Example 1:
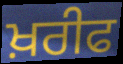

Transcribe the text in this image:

ਖ਼ਰੀਫ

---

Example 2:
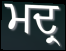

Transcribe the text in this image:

ਮਦ੍ਰ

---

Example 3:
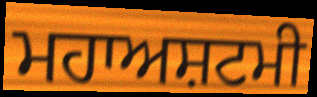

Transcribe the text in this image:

ਮਹਾਅਸ਼ਟਮੀ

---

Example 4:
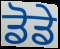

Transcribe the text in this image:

ਡੋਡੇ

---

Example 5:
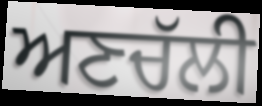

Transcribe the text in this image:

ਅਣਚੱਲੀ